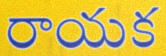
రాయక